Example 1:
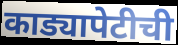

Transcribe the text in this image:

काड्यापेटीची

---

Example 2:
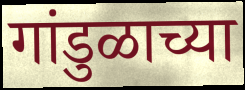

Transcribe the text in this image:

गांडुळाच्या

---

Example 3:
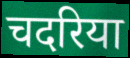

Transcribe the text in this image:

चदरिया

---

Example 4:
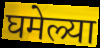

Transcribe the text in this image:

घमेल्या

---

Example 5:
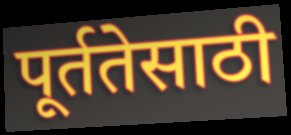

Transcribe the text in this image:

पूर्ततेसाठी